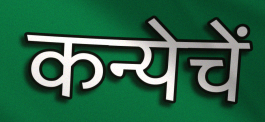
कन्येचें